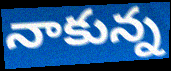
నాకున్న